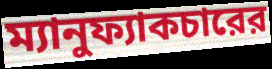
ম্যানুফ্যাকচারের